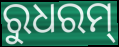
ରୁଧରମ୍